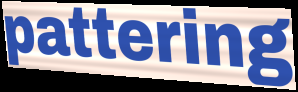
pattering